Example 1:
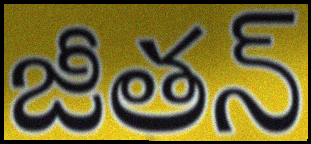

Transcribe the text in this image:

జీతన్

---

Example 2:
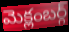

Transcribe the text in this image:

మెక్లంబర్గ్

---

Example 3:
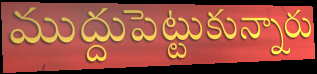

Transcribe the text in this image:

ముద్దుపెట్టుకున్నారు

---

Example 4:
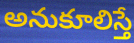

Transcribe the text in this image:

అనుకూలిస్తే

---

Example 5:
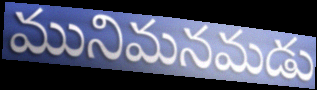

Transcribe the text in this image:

మునిమనమడు